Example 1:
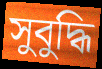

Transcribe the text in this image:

সুবুদ্ধি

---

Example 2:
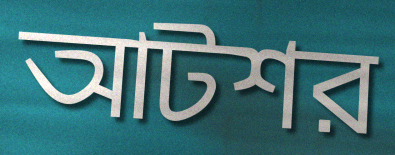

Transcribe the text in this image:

আটশর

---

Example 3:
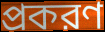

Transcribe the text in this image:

প্রকরণ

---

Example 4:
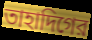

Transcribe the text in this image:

তাহাদিগের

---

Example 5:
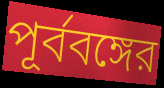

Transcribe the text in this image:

পূর্ববঙ্গের